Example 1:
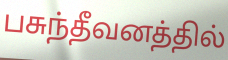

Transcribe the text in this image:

பசுந்தீவனத்தில்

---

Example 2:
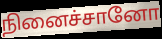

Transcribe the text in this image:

நினைச்சானோ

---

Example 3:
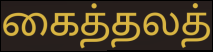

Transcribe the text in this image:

கைத்தலத்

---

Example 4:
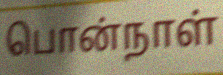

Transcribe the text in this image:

பொன்நாள்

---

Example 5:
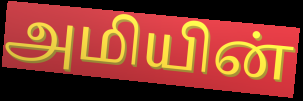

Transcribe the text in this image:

அமியின்